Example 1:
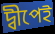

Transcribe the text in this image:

দ্বীপেই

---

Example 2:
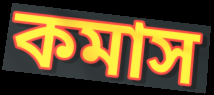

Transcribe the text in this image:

কমাস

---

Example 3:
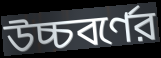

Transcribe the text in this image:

উচ্চবর্ণের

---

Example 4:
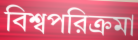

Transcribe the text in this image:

বিশ্বপরিক্রমা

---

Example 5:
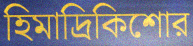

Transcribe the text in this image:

হিমাদ্রিকিশোর